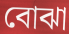
বোঝা